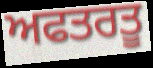
ਅਫਤਰਤੂ